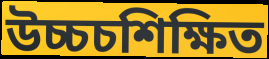
উচ্চচশিক্ষিত